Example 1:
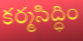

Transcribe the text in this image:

కర్మసిద్ధిం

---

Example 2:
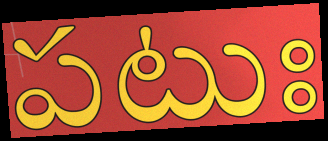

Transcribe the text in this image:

పటుః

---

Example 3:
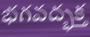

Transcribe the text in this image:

భగవద్భక్త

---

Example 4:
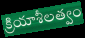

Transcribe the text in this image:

క్రియాశీలత్వం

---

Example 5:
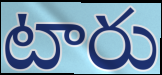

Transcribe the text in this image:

టారు